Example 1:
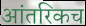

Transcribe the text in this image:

आंतरिकच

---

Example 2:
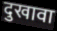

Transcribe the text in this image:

दुखावा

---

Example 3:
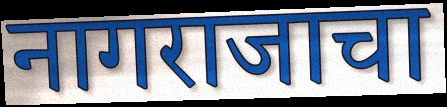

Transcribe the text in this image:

नागराजाचा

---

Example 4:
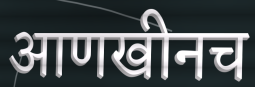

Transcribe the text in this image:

आणखीनच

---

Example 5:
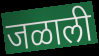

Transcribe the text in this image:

जळाली